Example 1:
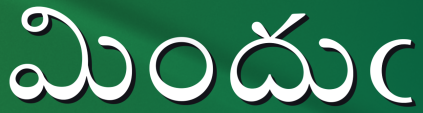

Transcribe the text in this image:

మిందుఁ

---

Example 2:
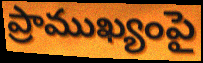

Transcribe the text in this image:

ప్రాముఖ్యంపై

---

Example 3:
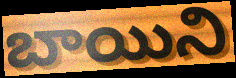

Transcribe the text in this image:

బాయిని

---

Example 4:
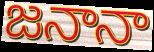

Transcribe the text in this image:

జనానా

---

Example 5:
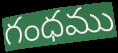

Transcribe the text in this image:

గంధము